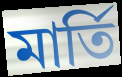
মার্তি